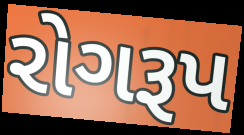
રોગરૂપ